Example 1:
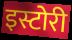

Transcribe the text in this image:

इस्टोरी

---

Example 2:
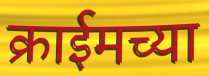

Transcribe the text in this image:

क्राईमच्या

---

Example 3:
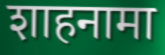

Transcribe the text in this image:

शाहनामा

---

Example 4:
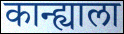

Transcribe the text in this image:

कान्ह्याला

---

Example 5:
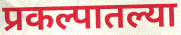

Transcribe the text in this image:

प्रकल्पातल्या